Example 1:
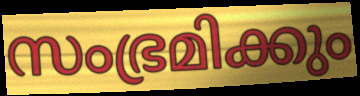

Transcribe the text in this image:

സംഭ്രമിക്കും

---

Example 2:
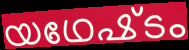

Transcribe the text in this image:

യഥേഷ്‌ടം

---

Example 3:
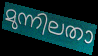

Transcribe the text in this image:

മുന്നിലതാ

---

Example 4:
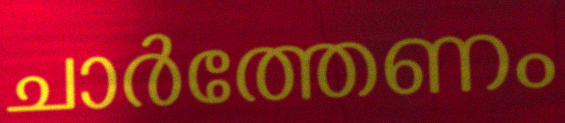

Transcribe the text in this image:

ചാർത്തേണം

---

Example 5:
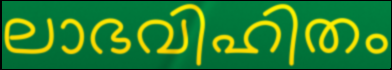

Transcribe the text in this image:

ലാഭവിഹിതം